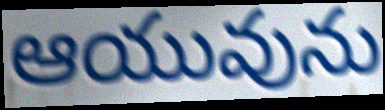
ఆయువును